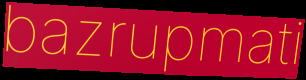
bazrupmati